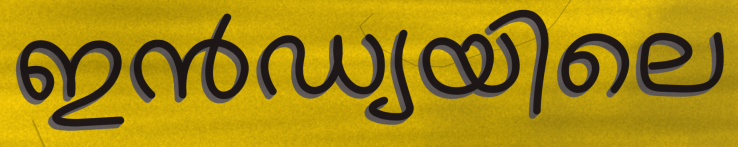
ഇൻഡ്യയിലെ